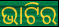
ଭାଟିର